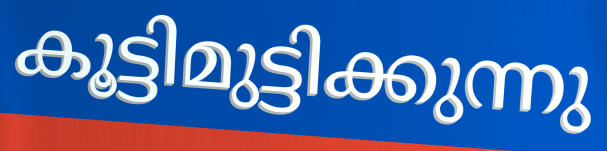
കൂട്ടിമുട്ടിക്കുന്നു